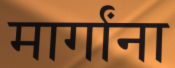
मार्गांना